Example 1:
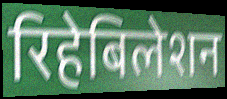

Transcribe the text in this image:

रिहेबिलेशन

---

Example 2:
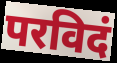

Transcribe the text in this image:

परविदं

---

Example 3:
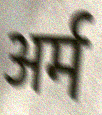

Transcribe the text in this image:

अर्म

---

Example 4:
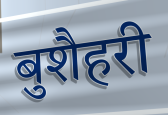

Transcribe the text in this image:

बुशैहरी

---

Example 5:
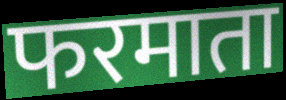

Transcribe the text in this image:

फरमाता